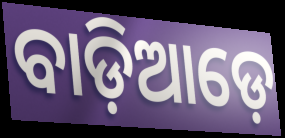
ବାଡ଼ିଆଡ଼େ